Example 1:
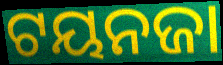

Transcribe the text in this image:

ଟୟନଜା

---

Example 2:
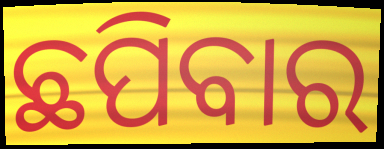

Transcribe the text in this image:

ଛପିବାର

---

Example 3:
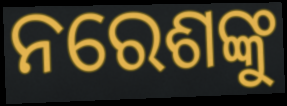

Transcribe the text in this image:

ନରେଶଙ୍କୁ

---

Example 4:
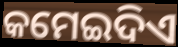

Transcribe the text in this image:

କମେଇଦିଏ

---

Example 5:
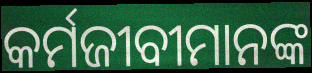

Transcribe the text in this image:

କର୍ମଜୀବୀମାନଙ୍କ